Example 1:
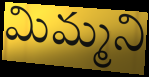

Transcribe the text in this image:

మిమ్మని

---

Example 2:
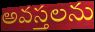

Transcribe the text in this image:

అవస్తలను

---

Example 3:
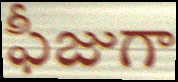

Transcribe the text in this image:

ఫీజుగా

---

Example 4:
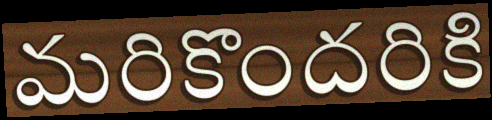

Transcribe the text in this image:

మరికొందరికి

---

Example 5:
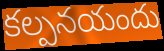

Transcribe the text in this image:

కల్పనయందు